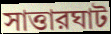
সাত্তারঘাট